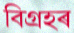
বিগ্ৰহৰ